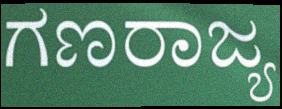
ಗಣರಾಜ್ಯ